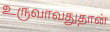
உருவாவதுதான்